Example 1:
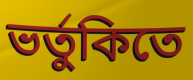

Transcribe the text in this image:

ভর্তুকিতে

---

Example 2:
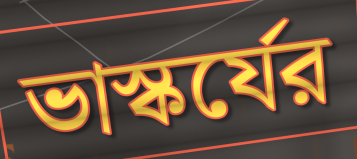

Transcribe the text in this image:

ভাস্কর্যের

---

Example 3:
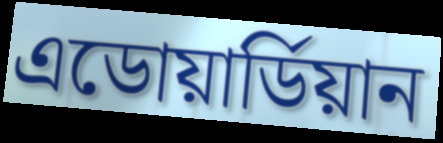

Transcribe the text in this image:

এডোয়ার্ডিয়ান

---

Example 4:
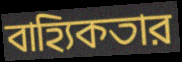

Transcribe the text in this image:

বাহ্যিকতার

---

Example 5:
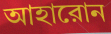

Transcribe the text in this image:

আহারোন